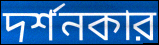
দর্শনকার